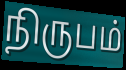
நிருபம்